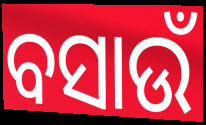
ବସାଉଁ